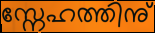
സ്നേഹത്തിനു്